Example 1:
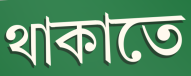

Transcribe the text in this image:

থাকাতে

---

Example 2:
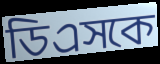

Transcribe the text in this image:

ডিএসকে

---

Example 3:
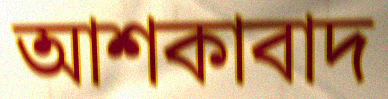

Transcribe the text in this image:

আশকাবাদ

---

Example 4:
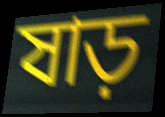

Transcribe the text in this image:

ষাড়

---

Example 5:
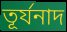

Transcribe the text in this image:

তূর্যনাদ